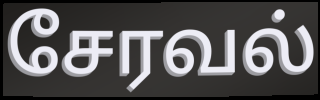
சேரவல்